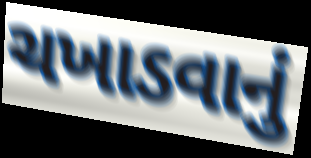
ચખાડવાનું